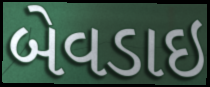
બેવડાઇ